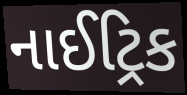
નાઈટ્રિક